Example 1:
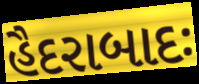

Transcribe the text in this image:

હૈદરાબાદઃ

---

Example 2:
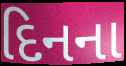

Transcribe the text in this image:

દિનના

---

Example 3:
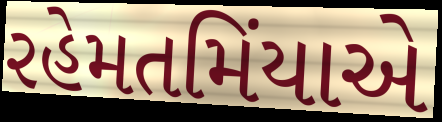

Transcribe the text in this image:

રહેમતમિંયાએ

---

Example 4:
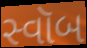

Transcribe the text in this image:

સ્વૉબ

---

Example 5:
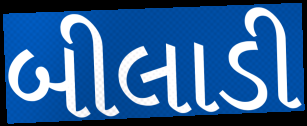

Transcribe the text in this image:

બીલાડી